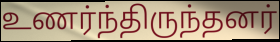
உணர்ந்திருந்தனர்